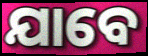
ଯାବେ